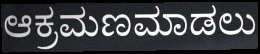
ಆಕ್ರಮಣಮಾಡಲು